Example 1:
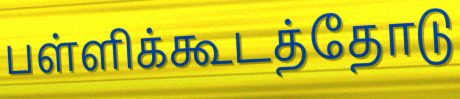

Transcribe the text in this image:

பள்ளிக்கூடத்தோடு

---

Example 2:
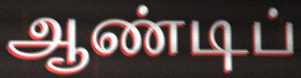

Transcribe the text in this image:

ஆண்டிப்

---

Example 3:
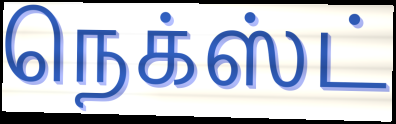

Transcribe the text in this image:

நெக்ஸ்ட்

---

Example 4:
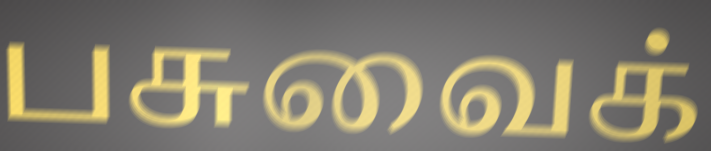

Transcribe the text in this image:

பசுவைக்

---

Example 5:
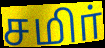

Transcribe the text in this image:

சமிர்